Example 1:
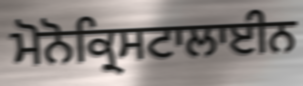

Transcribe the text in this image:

ਮੋਨੋਕ੍ਰਿਸਟਾਲਾਈਨ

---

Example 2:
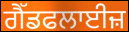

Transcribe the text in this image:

ਗੈੱਡਫਲਾਈਜ਼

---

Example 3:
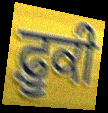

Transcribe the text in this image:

ਫ਼ੂਕੀ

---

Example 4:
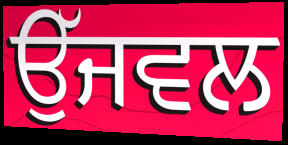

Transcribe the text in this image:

ਉੱਜਵਲ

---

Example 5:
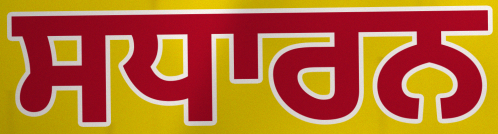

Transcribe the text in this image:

ਸਧਾਰਨ